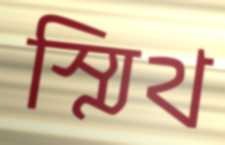
স্মিথ